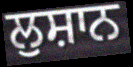
ਲੁਸ਼ਾਨ